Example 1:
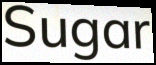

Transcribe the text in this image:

Sugar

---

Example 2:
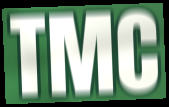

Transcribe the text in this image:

TMC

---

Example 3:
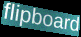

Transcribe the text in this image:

flipboard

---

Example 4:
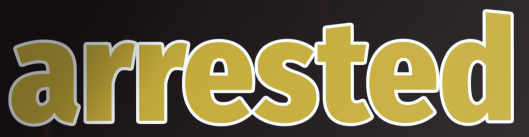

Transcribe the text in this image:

arrested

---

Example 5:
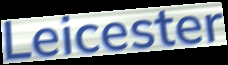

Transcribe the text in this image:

Leicester